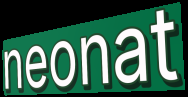
neonat